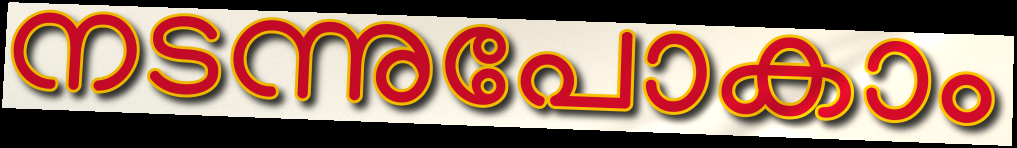
നടന്നുപോകാം